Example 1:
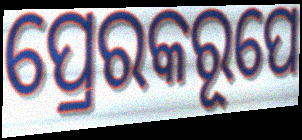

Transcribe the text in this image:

ପ୍ରେରକରୂପେ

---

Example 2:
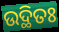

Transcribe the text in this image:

ଉଦ୍ଥିତଃ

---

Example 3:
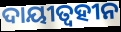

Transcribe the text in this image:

ଦାୟୀତ୍ୱହୀନ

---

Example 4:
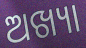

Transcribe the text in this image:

ଅଖ୍ୟା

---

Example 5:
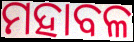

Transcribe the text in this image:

ମହାବଳ